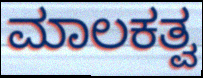
ಮಾಲಕತ್ವ